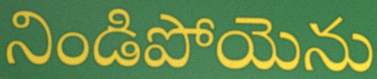
నిండిపోయెను